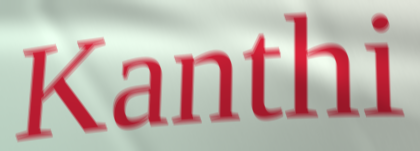
Kanthi